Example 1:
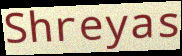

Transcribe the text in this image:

Shreyas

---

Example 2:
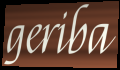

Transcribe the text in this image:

geriba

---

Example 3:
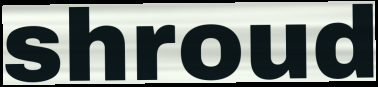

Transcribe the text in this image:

shroud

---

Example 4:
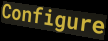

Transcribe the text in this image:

Configure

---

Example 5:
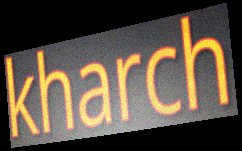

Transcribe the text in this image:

kharch